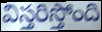
విస్తరిస్తోంది